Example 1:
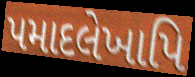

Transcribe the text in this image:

પમાદલેખાપિ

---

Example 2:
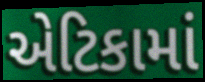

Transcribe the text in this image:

એટિકામાં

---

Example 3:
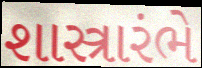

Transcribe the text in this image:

શાસ્ત્રારંભે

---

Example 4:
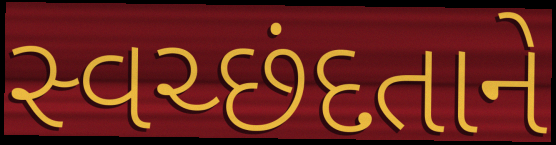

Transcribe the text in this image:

સ્વચ્છંદતાને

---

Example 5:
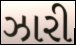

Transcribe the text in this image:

ઝારી